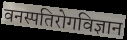
वनस्पतिरोगविज्ञान